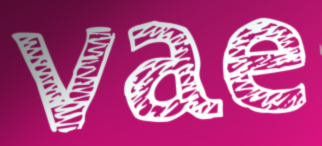
vae